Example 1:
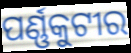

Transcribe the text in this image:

ପର୍ଣ୍ଣକୁଟୀର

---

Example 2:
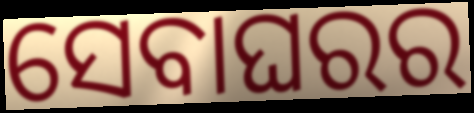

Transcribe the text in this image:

ସେବାଘରର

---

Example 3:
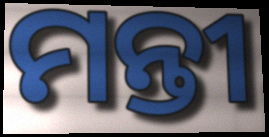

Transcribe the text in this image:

ମନ୍ତୀ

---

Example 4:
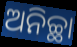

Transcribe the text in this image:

ଅନିଚ୍ଛା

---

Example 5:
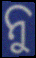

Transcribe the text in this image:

ନୁ